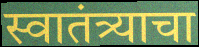
स्‍वातंत्र्याचा